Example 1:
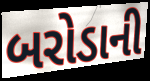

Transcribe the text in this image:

બરોડાની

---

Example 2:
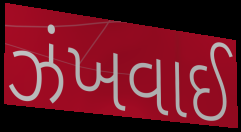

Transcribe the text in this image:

ઝંખવાઈ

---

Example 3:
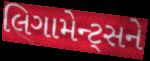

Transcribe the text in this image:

લિગામેન્ટ્સને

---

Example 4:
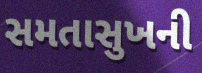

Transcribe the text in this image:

સમતાસુખની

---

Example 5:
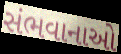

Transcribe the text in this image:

સંભવાનાઓ